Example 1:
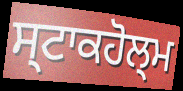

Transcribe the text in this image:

ਸ੍ਟਾਕਹੋਲ੍ਮ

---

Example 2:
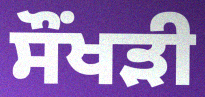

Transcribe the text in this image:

ਸੌਂਖੜੀ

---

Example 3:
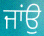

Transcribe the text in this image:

ਜਾਂਉ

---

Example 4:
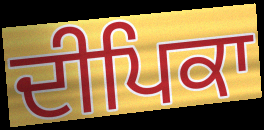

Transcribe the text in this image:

ਦੀਪਿਕਾ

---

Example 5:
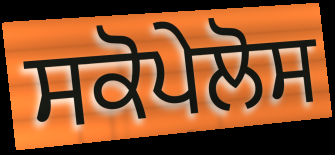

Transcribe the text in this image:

ਸਕੋਪੇਲੋਸ